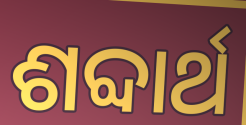
ଶବ୍ଦାର୍ଥ